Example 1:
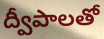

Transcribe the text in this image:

ద్వీపాలతో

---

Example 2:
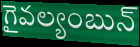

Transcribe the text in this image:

గైవల్యంబున్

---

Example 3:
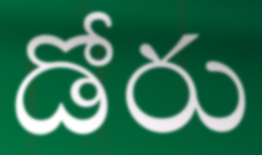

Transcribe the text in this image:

డోరు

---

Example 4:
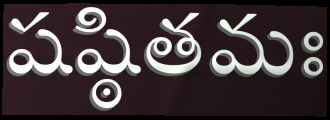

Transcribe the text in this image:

షష్ఠితమః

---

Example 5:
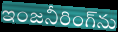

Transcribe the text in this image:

ఇంజనీరింగ్‌ను